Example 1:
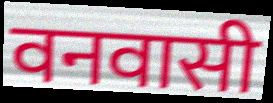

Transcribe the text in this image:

वनवासी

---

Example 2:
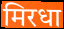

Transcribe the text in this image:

मिरधा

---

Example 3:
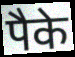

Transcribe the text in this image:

पैके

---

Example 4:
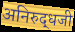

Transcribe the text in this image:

अनिरुद्धजी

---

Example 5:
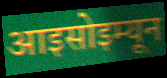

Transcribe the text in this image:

आइसोइम्यून